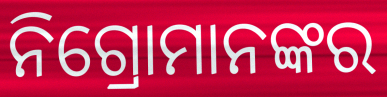
ନିଗ୍ରୋମାନଙ୍କର